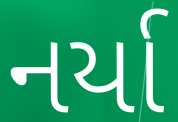
નર્યા